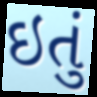
ઇતું